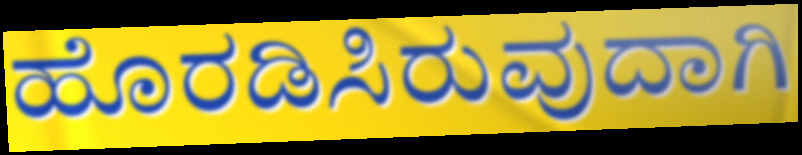
ಹೊರಡಿಸಿರುವುದಾಗಿ